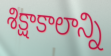
శిక్షాకాలాన్ని